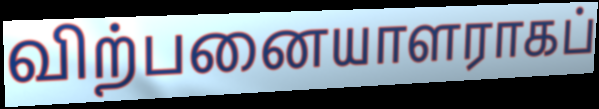
விற்பனையாளராகப்